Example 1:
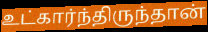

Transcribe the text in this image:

உட்கார்ந்திருந்தான்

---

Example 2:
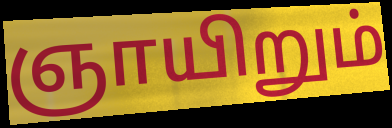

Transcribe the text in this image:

ஞாயிறும்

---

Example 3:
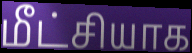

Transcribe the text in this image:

மீட்சியாக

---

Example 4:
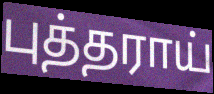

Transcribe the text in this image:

புத்தராய்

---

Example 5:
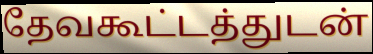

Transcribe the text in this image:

தேவகூட்டத்துடன்